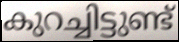
കുറച്ചിട്ടുണ്ട്